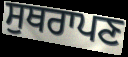
ਸੁਥਰਾਪਣ